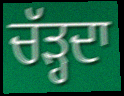
ਚੱੜ੍ਹਦਾ